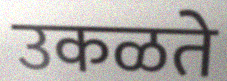
उकळते